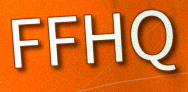
FFHQ